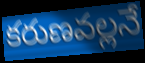
కరుణవల్లనే